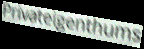
Privateigenthums